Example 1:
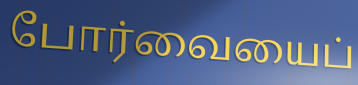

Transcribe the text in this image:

போர்வையைப்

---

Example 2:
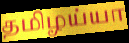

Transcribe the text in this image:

தமிழய்யா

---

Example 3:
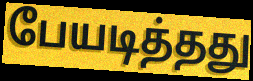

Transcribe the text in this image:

பேயடித்தது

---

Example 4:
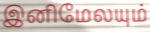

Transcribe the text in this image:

இனிமேலயும்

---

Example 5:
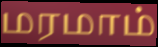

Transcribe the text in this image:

மரமாம்